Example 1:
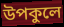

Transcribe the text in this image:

উপকুলে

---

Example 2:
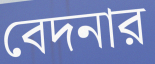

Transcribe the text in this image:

বেদনার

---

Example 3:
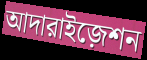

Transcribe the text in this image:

আদারাইজ়েশন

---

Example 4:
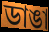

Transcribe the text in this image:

ডাঙা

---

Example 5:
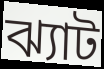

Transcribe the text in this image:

ঝ্যাট